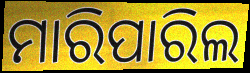
ମାରିପାରିଲ